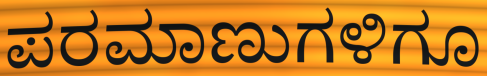
ಪರಮಾಣುಗಳಿಗೂ